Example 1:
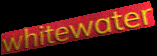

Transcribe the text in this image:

whitewater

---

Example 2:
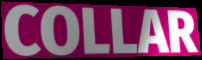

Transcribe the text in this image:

COLLAR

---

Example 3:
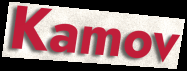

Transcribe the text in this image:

Kamov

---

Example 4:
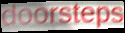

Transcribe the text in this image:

doorsteps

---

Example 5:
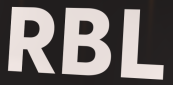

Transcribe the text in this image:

RBL